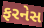
ફરનેસ